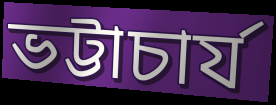
ভট্টাচাৰ্য